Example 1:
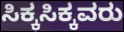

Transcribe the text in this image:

ಸಿಕ್ಕಸಿಕ್ಕವರು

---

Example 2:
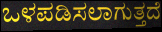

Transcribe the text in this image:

ಒಳಪಡಿಸಲಾಗುತ್ತದೆ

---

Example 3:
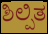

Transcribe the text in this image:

ಶಿಲ್ಪಿತ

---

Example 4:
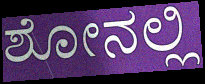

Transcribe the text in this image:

ಶೋನಲ್ಲಿ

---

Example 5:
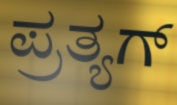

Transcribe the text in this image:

ಪ್ರತ್ಯಗ್